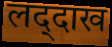
लद्‌दाख